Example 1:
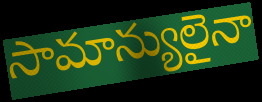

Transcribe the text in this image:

సామాన్యులైనా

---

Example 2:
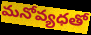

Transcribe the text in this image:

మనోవ్యధతో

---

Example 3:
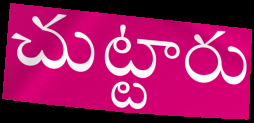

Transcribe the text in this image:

చుట్టారు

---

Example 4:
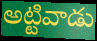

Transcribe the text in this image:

అట్టివాడు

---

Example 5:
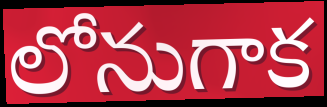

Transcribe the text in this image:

లోనుగాక